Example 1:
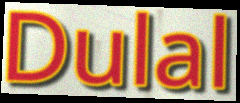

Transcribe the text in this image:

Dulal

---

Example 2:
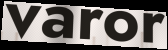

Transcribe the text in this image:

varor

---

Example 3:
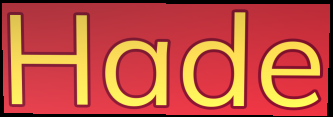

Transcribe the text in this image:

Hade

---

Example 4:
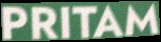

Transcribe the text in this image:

PRITAM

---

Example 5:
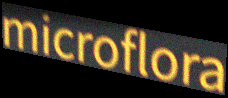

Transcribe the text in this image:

microflora